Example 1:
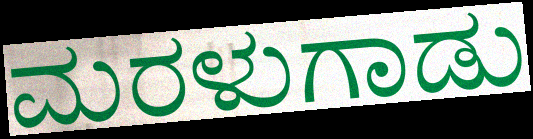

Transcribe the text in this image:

ಮರಳುಗಾಡು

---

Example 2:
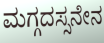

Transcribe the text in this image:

ಮಗ್ಗದಸ್ಸನೇನ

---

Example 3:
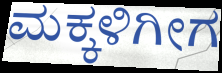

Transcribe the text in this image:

ಮಕ್ಕಳಿಗೀಗ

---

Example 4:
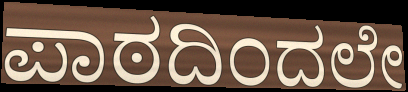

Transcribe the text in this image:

ಪಾಠದಿಂದಲೇ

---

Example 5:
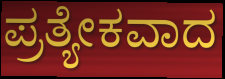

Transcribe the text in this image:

ಪ್ರತ್ಯೇಕವಾದ